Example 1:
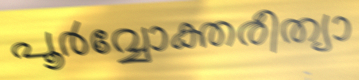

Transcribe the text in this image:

പൂർവ്വോക്തരീത്യാ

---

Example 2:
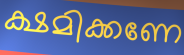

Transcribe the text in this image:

ക്ഷമിക്കണേ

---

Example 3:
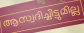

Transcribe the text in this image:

ആസ്വദിച്ചിട്ടുമില്ല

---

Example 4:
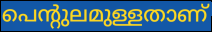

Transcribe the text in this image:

പെന്റുലമുള്ളതാണ്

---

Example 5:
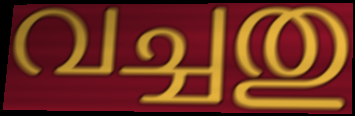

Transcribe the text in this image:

വച്ചതു